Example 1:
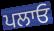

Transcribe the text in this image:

ਪਲਾਓ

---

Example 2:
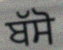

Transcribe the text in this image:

ਬੱਸੋ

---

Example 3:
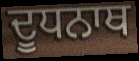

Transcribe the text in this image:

ਦੂਧਨਾਥ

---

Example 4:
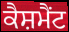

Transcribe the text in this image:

ਕੈਸ਼ਮੈਂਟ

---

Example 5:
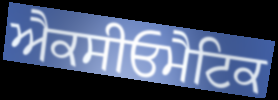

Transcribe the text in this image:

ਐਕਸੀਓਮੈਟਿਕ